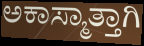
ಅಕಾಸ್ಮಾತ್ತಾಗಿ